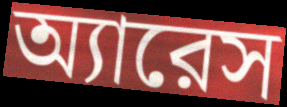
অ্যারেস